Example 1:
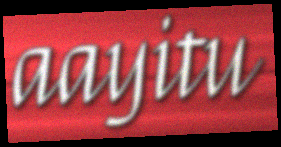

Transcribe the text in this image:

aayitu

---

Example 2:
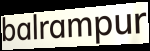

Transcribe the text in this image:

balrampur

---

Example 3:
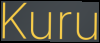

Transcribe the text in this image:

Kuru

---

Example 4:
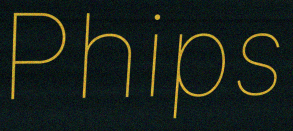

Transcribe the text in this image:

Phips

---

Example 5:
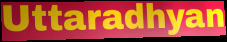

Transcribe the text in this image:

Uttaradhyan